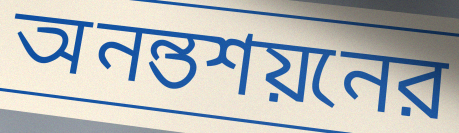
অনন্তশয়নের